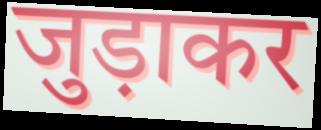
जुड़ाकर